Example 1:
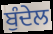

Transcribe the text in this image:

ਬੁੰਦੇਲ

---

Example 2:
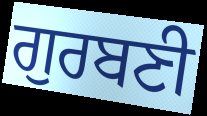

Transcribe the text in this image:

ਗੁਰਬਣੀ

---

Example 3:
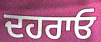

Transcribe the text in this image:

ਦਹਰਾਓ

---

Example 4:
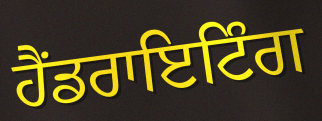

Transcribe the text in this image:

ਹੈਂਡਰਾਇਟਿੰਗ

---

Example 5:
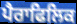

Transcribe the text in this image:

ਪੈਰਾਫਿਲਿਕ